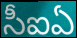
సీఐఏ